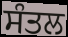
ਸੰਤਲ